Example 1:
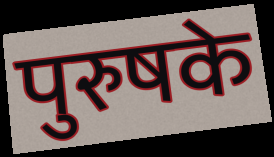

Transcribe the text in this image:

पुरुषके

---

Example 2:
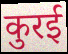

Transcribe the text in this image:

कुरई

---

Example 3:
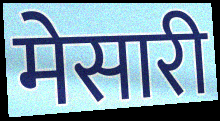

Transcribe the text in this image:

मेसारी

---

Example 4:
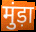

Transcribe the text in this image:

मुंड़ा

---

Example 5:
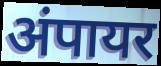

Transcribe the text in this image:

अंपायर